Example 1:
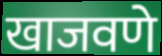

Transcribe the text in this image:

खाजवणे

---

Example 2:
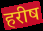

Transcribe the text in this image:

हरीष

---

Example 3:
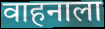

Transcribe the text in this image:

वाहनाला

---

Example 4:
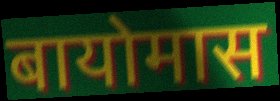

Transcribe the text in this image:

बायोमास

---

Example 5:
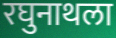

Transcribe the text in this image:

रघुनाथला